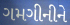
ગમગીનીને